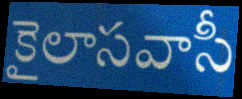
కైలాసవాసీ